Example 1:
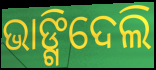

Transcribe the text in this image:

ଭାଙ୍ଗିଦେଲି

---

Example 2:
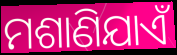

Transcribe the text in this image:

ମଶାଣିଯାଏଁ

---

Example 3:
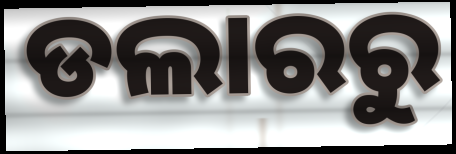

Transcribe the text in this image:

ଡଲାରରୁ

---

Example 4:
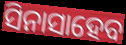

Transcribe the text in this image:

ସିନାସାହେବ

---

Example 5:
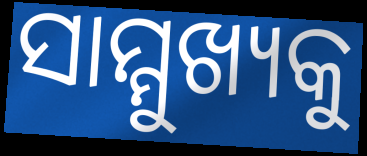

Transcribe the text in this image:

ସାମ୍ମୁଖ୍ୟକୁ